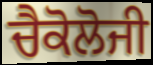
ਚੈਕੋਲੋਜੀ